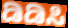
ಡಿಡಿಸಿ